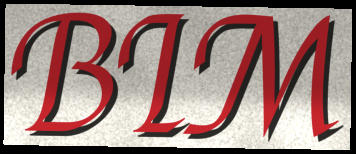
BIM